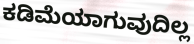
ಕಡಿಮೆಯಾಗುವುದಿಲ್ಲ